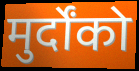
मुर्दोंको